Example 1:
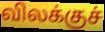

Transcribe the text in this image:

விலக்குச்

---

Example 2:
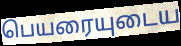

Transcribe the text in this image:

பெயரையுடைய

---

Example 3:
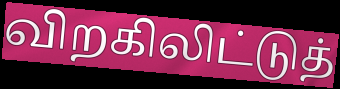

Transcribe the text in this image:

விறகிலிட்டுத்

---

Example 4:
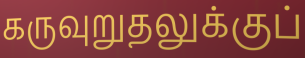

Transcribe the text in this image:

கருவுறுதலுக்குப்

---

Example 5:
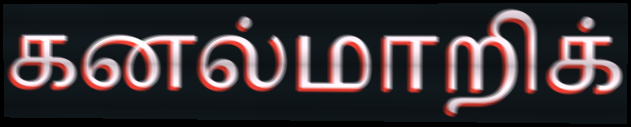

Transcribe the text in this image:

கனல்மாறிக்